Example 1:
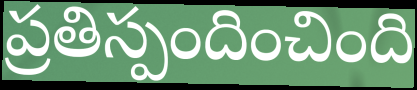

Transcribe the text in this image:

ప్రతిస్పందించింది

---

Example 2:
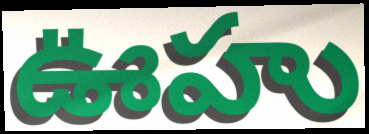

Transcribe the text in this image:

ఊహు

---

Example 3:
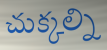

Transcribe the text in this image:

చుక్కల్ని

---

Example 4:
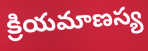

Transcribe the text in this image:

క్రియమాణస్య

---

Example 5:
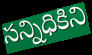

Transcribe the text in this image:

సన్నిధికిని